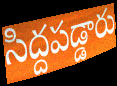
సిద్దపడ్డారు